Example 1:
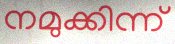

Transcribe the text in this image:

നമുക്കിന്ന്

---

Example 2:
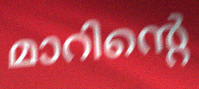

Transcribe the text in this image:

മാറിന്റെ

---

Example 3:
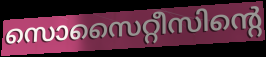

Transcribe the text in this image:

സൊസൈറ്റീസിന്റെ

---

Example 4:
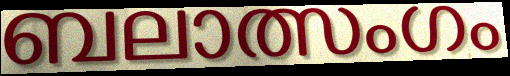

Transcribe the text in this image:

ബലാത്സംഗം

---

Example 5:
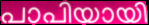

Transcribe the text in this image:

പാപിയായി